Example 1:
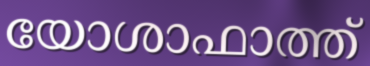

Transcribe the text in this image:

യോശാഫാത്ത്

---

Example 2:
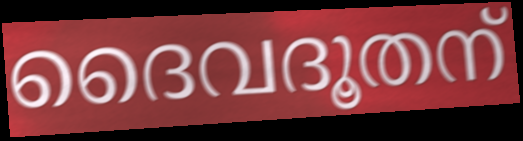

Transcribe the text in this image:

ദൈവദൂതന്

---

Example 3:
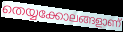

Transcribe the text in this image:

തെയ്യക്കോലങ്ങളാണ്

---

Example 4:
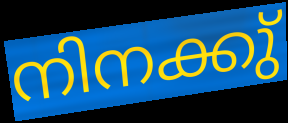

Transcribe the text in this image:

നിനക്കു്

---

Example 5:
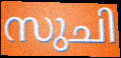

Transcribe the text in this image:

സുചി